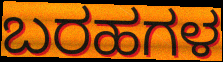
ಬರಹಗಳ